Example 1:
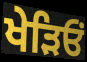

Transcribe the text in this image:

ਖੇੜਿਓਂ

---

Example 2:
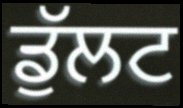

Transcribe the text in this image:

ਡੁੱਲਟ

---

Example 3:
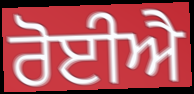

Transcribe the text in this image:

ਰੋਈਐ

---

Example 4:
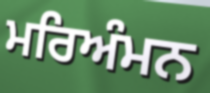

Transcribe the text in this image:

ਮਰਿਅੰਮਨ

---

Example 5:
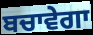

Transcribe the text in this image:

ਬਚਾਵੇਗਾ